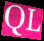
QL